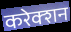
करेक्शन